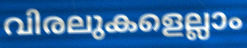
വിരലുകളെല്ലാം